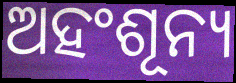
ଅହଂଶୂନ୍ୟ